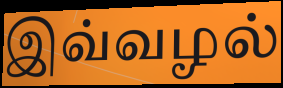
இவ்வழல்